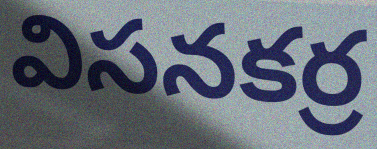
విసనకర్ర